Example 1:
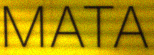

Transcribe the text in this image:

MATA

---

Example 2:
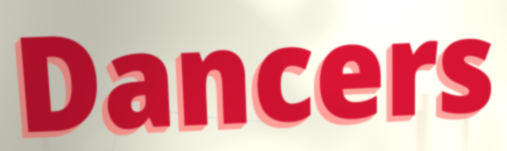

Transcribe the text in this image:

Dancers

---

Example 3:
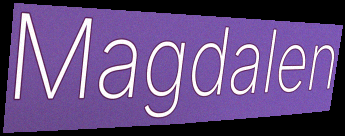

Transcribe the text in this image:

Magdalen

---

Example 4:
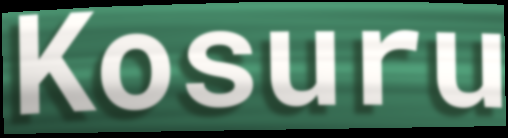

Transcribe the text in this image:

Kosuru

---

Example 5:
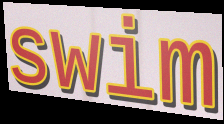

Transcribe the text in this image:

swim